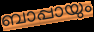
ബാപ്പായും